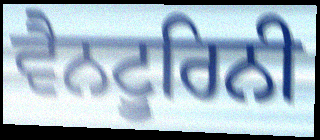
ਵੈਨਟੂਰਿਨੀ